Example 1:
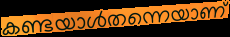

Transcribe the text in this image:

കണ്ടയാൾതന്നെയാണ്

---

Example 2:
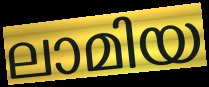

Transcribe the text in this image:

ലാമിയ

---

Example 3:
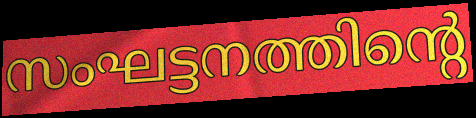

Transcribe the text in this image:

സംഘട്ടനത്തിന്റെ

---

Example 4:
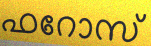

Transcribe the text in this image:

ഫറോസ്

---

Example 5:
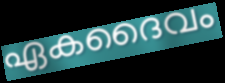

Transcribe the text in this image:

ഏകദൈവം